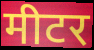
मीटर